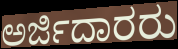
ಅರ್ಜಿದಾರರು